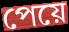
পেয়ে